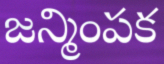
జన్మింపక